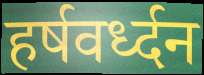
हर्षवर्ध्दन